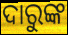
ଦାରୁଙ୍କ